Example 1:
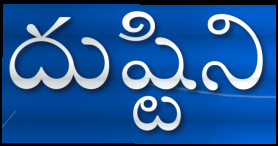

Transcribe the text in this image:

దుష్టిని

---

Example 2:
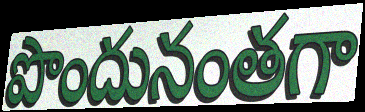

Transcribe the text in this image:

పొందునంతగా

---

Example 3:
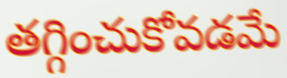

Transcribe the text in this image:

తగ్గించుకోవడమే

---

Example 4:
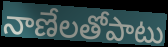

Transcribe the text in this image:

నాణేలతోపాటు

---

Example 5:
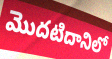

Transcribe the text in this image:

మొదటిదానిలో